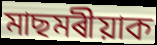
মাছমৰীয়াক